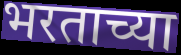
भरताच्या